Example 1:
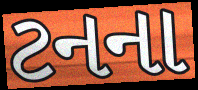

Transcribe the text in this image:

ટનના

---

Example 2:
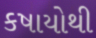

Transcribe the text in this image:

કષાયોથી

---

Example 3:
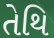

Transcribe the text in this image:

તેથિ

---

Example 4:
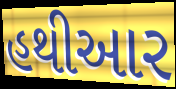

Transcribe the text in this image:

હથીઆર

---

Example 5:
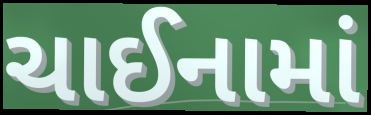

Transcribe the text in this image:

ચાઈનામાં